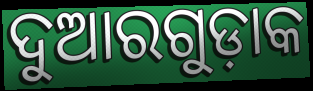
ଦୁଆରଗୁଡ଼ାକ